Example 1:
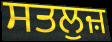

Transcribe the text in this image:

ਸਤਲੁਜ਼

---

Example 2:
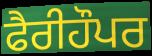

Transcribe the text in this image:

ਫੈਰੀਹੌਪਰ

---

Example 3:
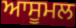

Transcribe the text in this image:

ਆਸੂਮਲ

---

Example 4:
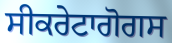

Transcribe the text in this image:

ਸੀਕਰੇਟਾਗੋਗਸ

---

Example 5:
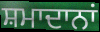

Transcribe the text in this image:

ਸ਼ਮਾਦਾਨਾਂ